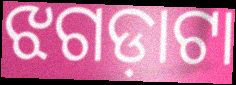
ଝଗଡ଼ାଟା